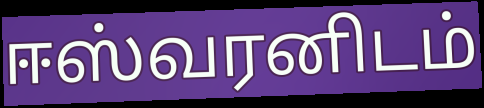
ஈஸ்வரனிடம்